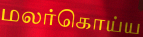
மலர்கொய்ய